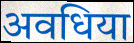
अवधिया